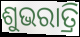
ଶୁଭରାତ୍ରି